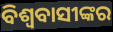
ବିଶ୍ୱବାସୀଙ୍କର